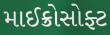
માઈક્રોસોફ્ટ